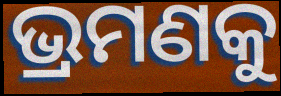
ଭ୍ରମଣକୁ